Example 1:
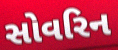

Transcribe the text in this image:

સોવરિન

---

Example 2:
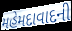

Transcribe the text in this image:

મહેમદાવાદની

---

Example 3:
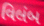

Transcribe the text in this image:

વિલંબ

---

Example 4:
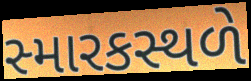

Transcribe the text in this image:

સ્મારકસ્થળે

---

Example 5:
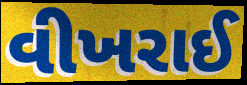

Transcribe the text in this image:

વીખરાઈ